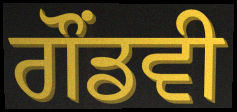
ਗੌਂਡਵੀ